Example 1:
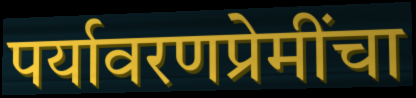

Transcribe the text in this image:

पर्यावरणप्रेमींचा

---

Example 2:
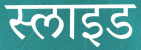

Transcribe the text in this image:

स्लाइड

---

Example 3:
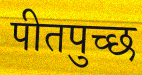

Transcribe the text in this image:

पीतपुच्छ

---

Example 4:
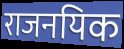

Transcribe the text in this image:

राजनयिक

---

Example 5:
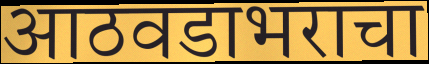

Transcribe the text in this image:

आठवडाभराचा